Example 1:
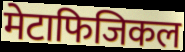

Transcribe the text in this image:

मेटाफिजिकल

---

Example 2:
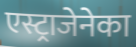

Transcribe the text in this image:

एस्ट्राजेनेका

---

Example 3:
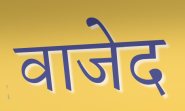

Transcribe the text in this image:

वाजेद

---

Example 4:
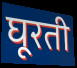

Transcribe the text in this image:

घूरती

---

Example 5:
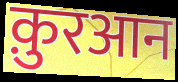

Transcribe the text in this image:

क़ुरआन